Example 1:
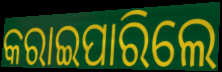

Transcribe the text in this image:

କରାଇପାରିଲେ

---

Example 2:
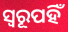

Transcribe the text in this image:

ସ୍ୱରୂପହିଁ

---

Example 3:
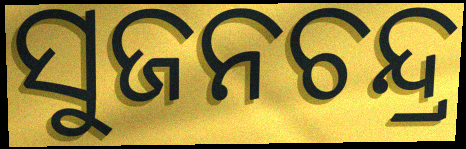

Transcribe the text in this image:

ସୁଜନଚନ୍ଦ୍ର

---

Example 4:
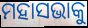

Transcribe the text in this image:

ମହାସଭାକୁ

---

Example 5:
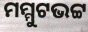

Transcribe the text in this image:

ମମ୍ମୁଟଭଟ୍ଟ